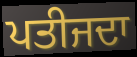
ਪਤੀਜਦਾ